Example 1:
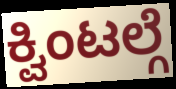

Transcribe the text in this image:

ಕ್ವಿಂಟಲ್ಗೆ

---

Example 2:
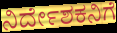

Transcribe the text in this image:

ನಿರ್ದೇಶಕನಿಗೆ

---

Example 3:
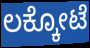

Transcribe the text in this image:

ಲಕ್ಕೋಟೆ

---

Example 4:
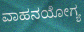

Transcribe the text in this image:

ವಾಹನಯೋಗ್ಯ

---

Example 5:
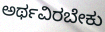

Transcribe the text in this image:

ಅರ್ಥವಿರಬೇಕು